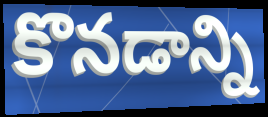
కొనడాన్ని